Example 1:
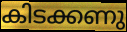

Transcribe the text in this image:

കിടക്കണു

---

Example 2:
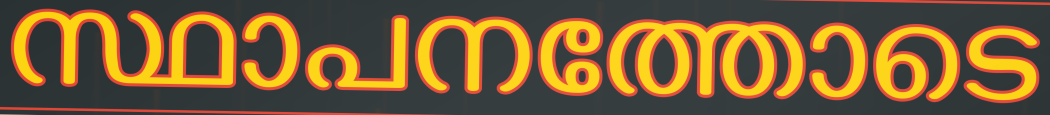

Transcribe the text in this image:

സ്ഥാപനത്തോടെ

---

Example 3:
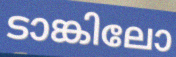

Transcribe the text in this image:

ടാങ്കിലോ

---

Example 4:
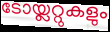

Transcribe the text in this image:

ടോയ്ലറ്റുകളും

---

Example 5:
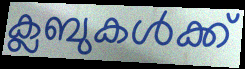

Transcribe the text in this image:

ക്ലബുകൾക്ക്